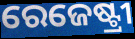
ରେଜେଷ୍ଟ୍ରୀ